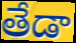
తేడా